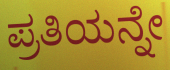
ಪ್ರತಿಯನ್ನೇ